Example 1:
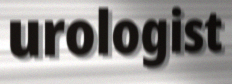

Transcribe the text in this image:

urologist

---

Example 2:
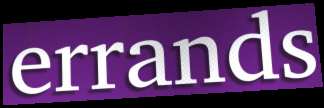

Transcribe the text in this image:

errands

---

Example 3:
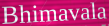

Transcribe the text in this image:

Bhimavala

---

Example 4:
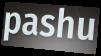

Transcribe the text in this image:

pashu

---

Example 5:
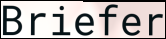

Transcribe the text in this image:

Briefer